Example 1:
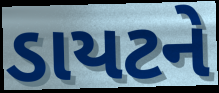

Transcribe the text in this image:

ડાયટને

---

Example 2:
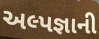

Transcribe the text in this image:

અલ્પજ્ઞાની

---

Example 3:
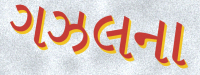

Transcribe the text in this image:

ગઝલના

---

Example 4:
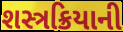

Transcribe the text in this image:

શસ્ત્રક્રિયાની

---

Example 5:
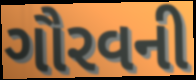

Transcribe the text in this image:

ગૌરવની